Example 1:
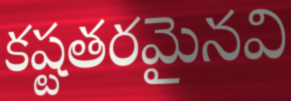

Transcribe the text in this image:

కష్టతరమైనవి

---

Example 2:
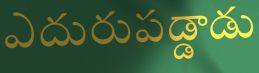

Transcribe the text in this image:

ఎదురుపడ్డాడు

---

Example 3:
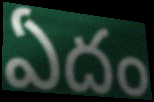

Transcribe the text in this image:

ఏదం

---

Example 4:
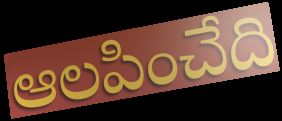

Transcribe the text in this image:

ఆలపించేది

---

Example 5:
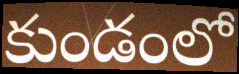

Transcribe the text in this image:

కుండంలో